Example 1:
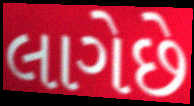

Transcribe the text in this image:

લાગેછે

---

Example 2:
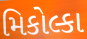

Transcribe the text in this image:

મિકોલ્કા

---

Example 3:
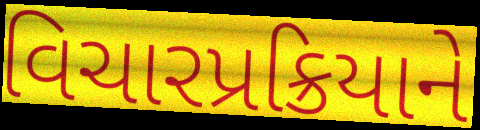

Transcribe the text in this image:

વિચારપ્રક્રિયાને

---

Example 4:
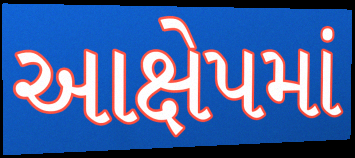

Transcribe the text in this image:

આક્ષેપમાં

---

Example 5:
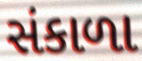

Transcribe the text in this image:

સંકાળા